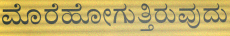
ಮೊರೆಹೋಗುತ್ತಿರುವುದು